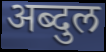
अब्दुल